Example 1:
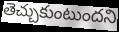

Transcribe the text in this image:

తెచ్చుకుంటుందని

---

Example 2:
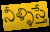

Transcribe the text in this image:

నీళ్ళిస్తే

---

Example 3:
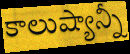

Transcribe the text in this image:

కాలుష్యాన్నీ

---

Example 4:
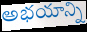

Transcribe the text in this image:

అభయాన్ని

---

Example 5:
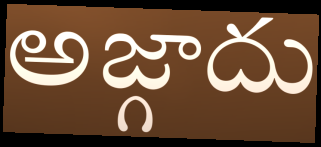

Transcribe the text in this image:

అజ్గాదు